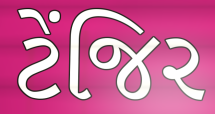
ટેંજિર